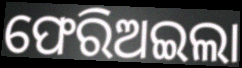
ଫେରିଅଇଲା